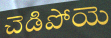
చెడిపోయె